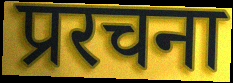
प्ररचना